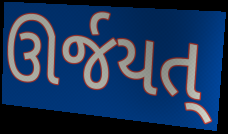
ઊર્જયત્